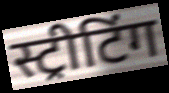
स्ट्रीटिंग